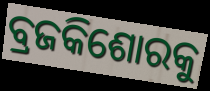
ବ୍ରଜକିଶୋରକୁ